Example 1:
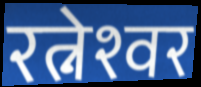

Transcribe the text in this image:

रत्नेश्वर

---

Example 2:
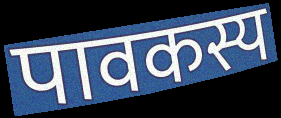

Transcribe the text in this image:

पावकस्य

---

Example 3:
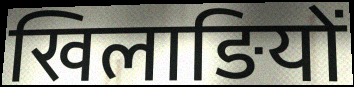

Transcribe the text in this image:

खिलाङियों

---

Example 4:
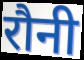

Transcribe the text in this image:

रौनी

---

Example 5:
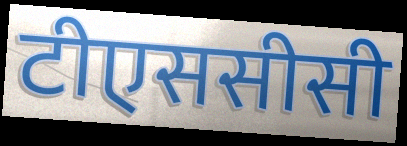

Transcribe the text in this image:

टीएससीसी